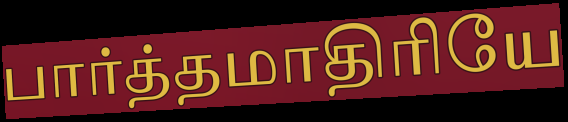
பார்த்தமாதிரியே